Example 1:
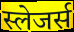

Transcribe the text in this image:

स्लेजर्स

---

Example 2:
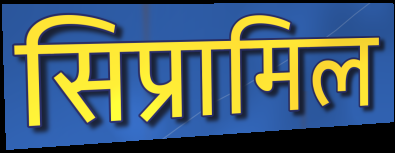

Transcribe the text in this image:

सिप्रामिल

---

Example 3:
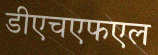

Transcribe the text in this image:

डीएचएफएल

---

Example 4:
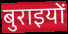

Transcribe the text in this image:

बुराइयों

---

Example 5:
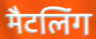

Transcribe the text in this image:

मैटलिंग